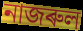
নাজৰুল